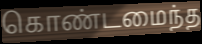
கொண்டமைந்த